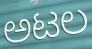
ಅಟಲ